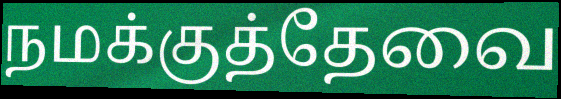
நமக்குத்தேவை